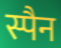
स्पैन